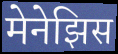
मेनेझिस